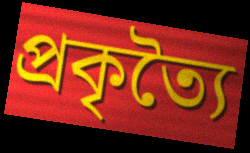
প্রকৃত্যৈ